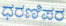
ಧರಣಿಪರ